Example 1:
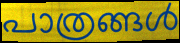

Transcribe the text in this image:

പാത്രങ്ങൾ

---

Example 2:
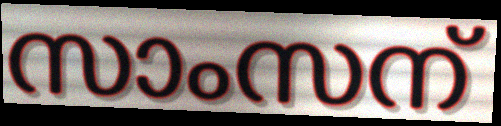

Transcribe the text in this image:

സാംസന്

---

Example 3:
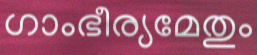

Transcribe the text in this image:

ഗാംഭീര്യമേതും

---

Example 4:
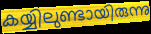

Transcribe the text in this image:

കയ്യിലുണ്ടായിരുന്നു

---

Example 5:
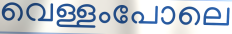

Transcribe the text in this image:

വെള്ളംപോലെ